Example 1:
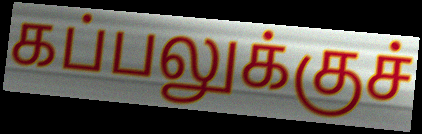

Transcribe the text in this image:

கப்பலுக்குச்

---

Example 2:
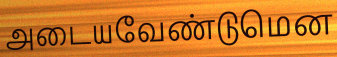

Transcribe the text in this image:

அடையவேண்டுமென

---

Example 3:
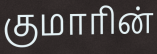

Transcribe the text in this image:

குமாரின்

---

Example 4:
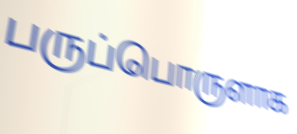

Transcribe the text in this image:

பருப்பொருளாக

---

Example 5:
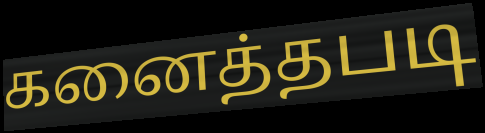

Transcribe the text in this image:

கனைத்தபடி